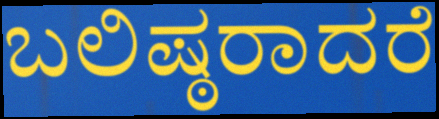
ಬಲಿಷ್ಠರಾದರೆ